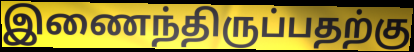
இணைந்திருப்பதற்கு